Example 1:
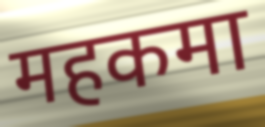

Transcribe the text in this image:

महकमा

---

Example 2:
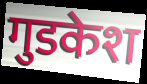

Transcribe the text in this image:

गुडकेश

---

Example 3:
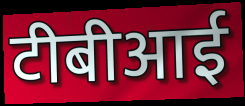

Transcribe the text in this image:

टीबीआई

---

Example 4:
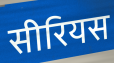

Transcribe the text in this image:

सीरियस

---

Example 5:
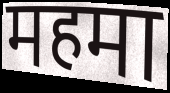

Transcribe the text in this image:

महमा